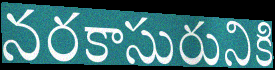
నరకాసురునికి